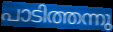
പാടിത്തന്നു